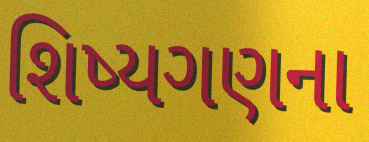
શિષ્યગણના